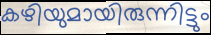
കഴിയുമായിരുന്നിട്ടും